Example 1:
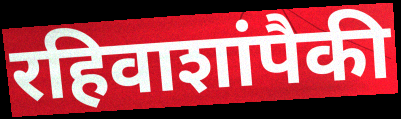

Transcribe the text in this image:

रहिवाशांपैकी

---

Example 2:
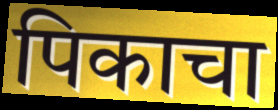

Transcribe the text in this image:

पिकाचा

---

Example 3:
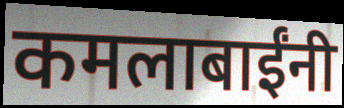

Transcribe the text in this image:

कमलाबाईंनी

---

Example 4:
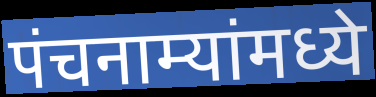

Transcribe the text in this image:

पंचनाम्यांमध्ये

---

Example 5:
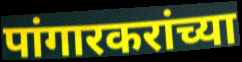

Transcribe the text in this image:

पांगारकरांच्या